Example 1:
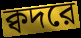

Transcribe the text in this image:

ক্বদরে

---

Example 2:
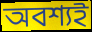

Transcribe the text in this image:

অবশ্যই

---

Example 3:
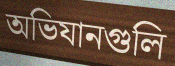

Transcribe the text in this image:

অভিযানগুলি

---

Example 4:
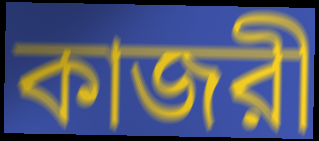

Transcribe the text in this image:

কাজরী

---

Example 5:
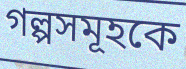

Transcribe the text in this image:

গল্পসমূহকে